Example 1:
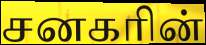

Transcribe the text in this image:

சனகரின்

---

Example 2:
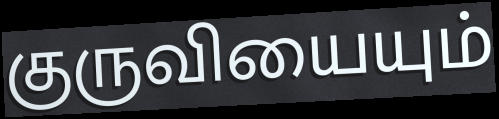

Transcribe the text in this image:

குருவியையும்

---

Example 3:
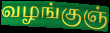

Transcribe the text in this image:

வழங்குஞ்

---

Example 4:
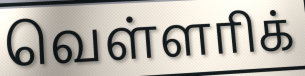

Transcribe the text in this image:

வெள்ளரிக்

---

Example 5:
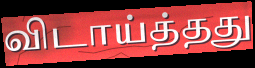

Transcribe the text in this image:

விடாய்த்தது